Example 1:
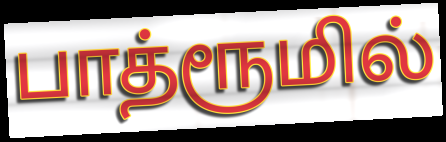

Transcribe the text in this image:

பாத்ரூமில்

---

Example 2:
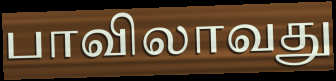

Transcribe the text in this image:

பாவிலாவது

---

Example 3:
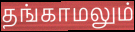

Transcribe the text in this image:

தங்காமலும்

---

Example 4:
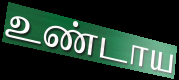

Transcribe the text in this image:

உண்டாய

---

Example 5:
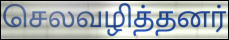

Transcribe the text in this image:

செலவழித்தனர்